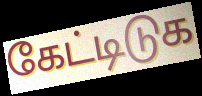
கேட்டிடுக